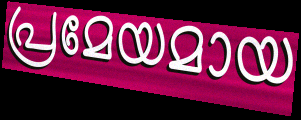
പ്രമേയമായ